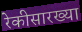
रेकीसारख्या